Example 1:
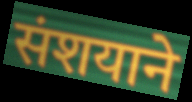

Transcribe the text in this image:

संशयाने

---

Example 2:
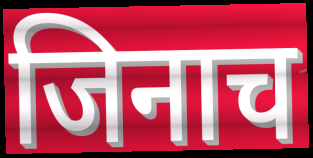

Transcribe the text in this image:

जिनाच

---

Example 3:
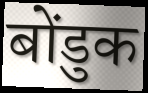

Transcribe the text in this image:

बोंडुक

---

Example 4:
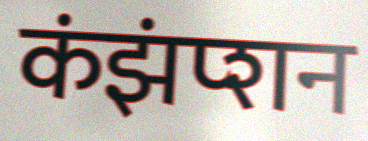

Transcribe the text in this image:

कंझंप्शन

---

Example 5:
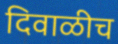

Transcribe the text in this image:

दिवाळीच